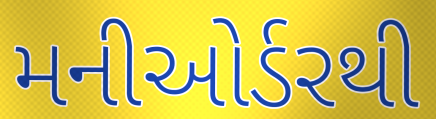
મનીઓર્ડરથી